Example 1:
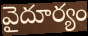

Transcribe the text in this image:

వైదూర్యం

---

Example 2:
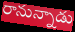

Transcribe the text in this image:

రానున్నాడు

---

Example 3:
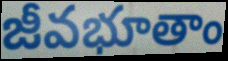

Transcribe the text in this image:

జీవభూతాం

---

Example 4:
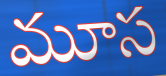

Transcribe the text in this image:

మూస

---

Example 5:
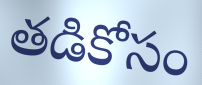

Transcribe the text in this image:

తడికోసం